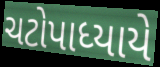
ચટોપાધ્યાયે